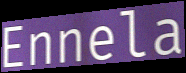
Ennela